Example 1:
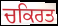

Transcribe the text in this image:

ਚਕਿਰਤ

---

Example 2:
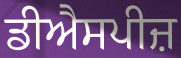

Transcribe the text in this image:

ਡੀਐਸਪੀਜ਼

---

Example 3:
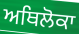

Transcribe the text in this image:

ਅਥਿਲੋਕਾ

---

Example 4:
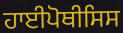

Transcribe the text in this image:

ਹਾਈਪੋਥੀਸਿਸ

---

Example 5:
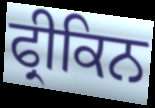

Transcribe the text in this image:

ਫ੍ਰੀਕਿਨ